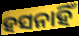
ହସନାହିଁ